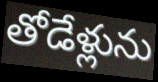
తోడేళ్లును